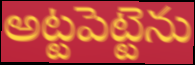
అట్టపెట్టెను